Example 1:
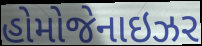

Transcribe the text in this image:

હોમોજેનાઇઝર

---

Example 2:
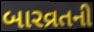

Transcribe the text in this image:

બારવ્રતની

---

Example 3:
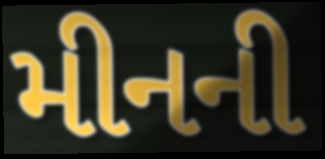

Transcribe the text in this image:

મીનની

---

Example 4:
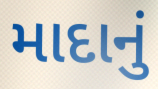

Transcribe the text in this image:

માદાનું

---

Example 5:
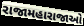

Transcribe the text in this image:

રાજામહારાજાઓ